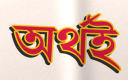
অর্থই